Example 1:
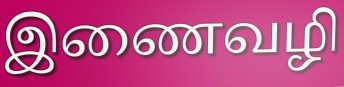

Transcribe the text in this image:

இணைவழி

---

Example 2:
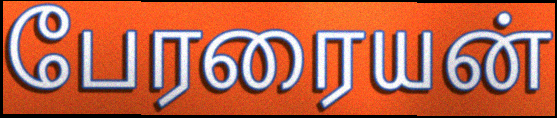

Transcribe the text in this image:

பேரரையன்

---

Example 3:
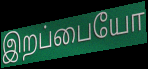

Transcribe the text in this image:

இறப்பையோ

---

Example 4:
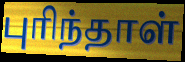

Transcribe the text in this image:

புரிந்தாள்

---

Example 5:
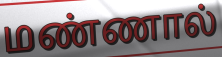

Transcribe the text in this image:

மண்ணால்